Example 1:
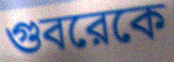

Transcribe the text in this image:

গুবরেকে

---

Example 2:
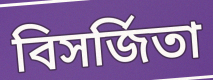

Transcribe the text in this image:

বিসর্জিতা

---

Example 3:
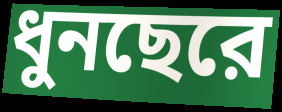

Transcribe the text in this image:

ধুনছেরে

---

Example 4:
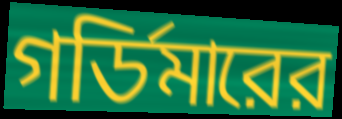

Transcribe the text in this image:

গর্ডিমারের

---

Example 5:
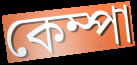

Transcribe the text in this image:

কেম্পা